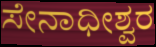
ಸೇನಾಧೀಶ್ವರ